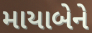
માયાબેને